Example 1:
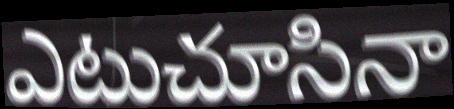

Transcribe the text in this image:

ఎటుచూసినా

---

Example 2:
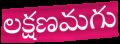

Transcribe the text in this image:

లక్షణమగు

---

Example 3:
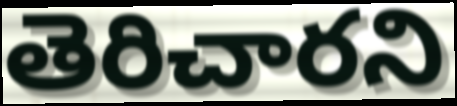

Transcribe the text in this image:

తెరిచారని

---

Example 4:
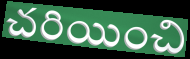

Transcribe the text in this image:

చరియించి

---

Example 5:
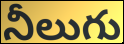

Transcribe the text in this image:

నీలుగు